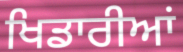
ਖਿਡਾਰੀਆਂ